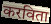
करविता